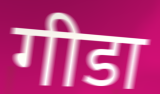
गीडा